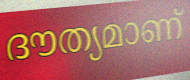
ദൗത്യമാണ്